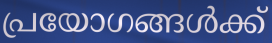
പ്രയോഗങ്ങൾക്ക്